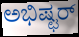
ಅಭಿಷ್ಟರ್